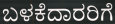
ಬಳಕೆದಾರರಿಗೆ